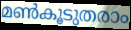
മൺകൂടുതരാം